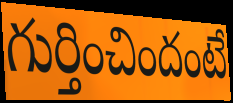
గుర్తించిందంటే